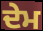
ਦੇਮ